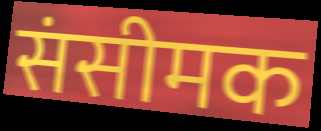
संसीमक